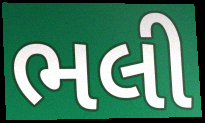
ભલી